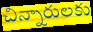
చిన్నారులకు